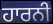
ਹਾਰਨੀ